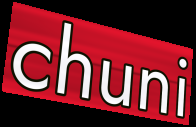
chuni